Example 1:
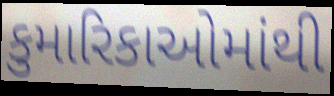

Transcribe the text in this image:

કુમારિકાઓમાંથી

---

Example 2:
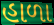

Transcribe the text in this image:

હાળા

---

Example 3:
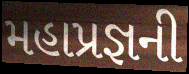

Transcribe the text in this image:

મહાપ્રજ્ઞની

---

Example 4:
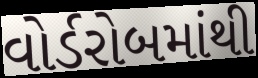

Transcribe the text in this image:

વોર્ડરોબમાંથી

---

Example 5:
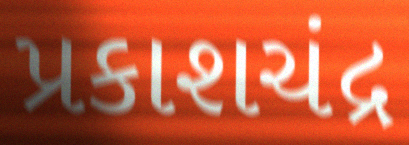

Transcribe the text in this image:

પ્રકાશચંદ્ર